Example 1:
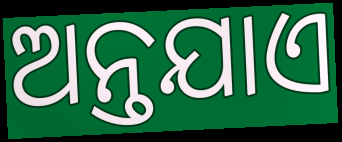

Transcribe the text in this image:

ଅନ୍ତଯାଏ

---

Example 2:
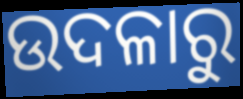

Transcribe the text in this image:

ଉଦଳାରୁ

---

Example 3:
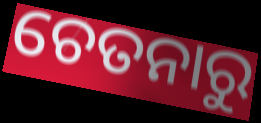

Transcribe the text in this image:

ଚେତନାରୁ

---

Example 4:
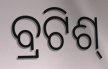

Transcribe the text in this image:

ବ୍ରଟିଶ୍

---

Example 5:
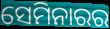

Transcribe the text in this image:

ସେମିନାରର